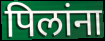
पिलांना